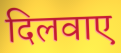
दिलवाए